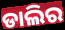
ଡାଲିର